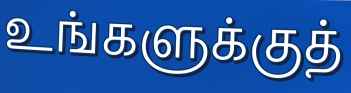
உங்களுக்குத்